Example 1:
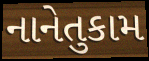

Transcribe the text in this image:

નાનેતુકામ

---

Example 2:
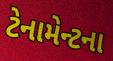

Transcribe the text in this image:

ટેનામેન્ટના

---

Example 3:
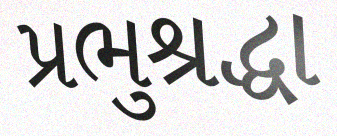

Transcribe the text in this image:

પ્રભુશ્રદ્ધા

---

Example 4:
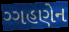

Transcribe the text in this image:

ગ્ગહણેન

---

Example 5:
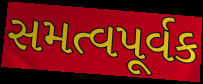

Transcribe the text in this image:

સમત્વપૂર્વક